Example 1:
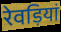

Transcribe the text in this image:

रेवड़ियां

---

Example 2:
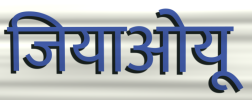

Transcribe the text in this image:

जियाओयू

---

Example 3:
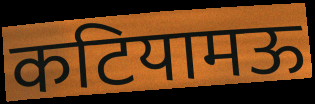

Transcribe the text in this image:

कटियामऊ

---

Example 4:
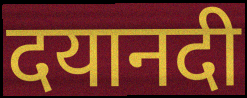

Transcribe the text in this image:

दयानदी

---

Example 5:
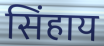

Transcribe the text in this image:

सिंहाय